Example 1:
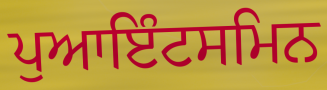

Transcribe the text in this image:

ਪੁਆਇੰਟਸਮਿਨ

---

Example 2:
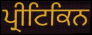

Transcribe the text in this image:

ਪ੍ਰੀਟਿਕਿਨ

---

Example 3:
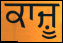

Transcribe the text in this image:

ਕਾਜ਼ੂ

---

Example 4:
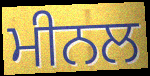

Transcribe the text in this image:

ਮੀਨਲ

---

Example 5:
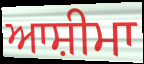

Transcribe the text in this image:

ਆਸ਼ੀਮਾ